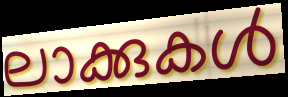
ലാക്കുകൾ